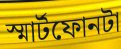
স্মার্টফোনটা